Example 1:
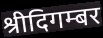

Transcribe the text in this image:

श्रीदिगम्बर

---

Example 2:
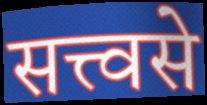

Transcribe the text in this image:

सत्त्वसे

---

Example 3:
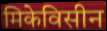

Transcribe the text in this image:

मिकेविसीन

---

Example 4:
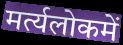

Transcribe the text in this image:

मर्त्यलोकमें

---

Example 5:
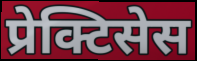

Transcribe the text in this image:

प्रेक्टिसेस